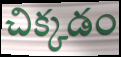
చిక్కడం